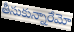
తీసుకున్నారేమో